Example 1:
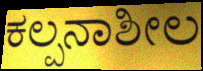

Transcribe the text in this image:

ಕಲ್ಪನಾಶೀಲ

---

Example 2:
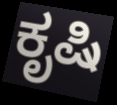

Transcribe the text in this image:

ಕೃಷಿ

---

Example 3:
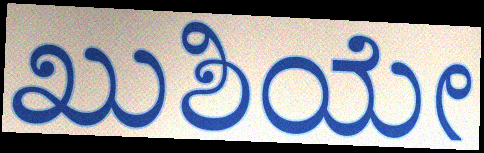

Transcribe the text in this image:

ಖುಶಿಯೇ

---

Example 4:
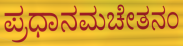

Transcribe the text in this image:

ಪ್ರಧಾನಮಚೇತನಂ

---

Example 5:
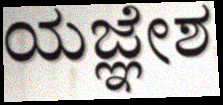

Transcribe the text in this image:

ಯಜ್ಞೇಶ